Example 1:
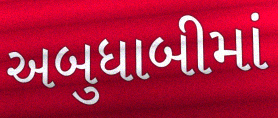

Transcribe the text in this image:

અબુધાબીમાં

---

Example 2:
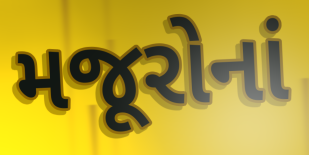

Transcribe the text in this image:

મજૂરોનાં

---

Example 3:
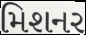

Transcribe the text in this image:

મિશનર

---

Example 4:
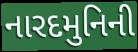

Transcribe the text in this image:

નારદમુનિની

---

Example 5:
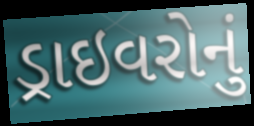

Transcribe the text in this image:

ડ્રાઇવરોનું